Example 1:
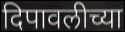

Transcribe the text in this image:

दिपावलीच्या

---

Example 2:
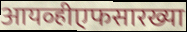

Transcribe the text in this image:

आयव्हीएफसारख्या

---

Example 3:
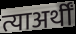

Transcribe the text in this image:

त्याअर्थीं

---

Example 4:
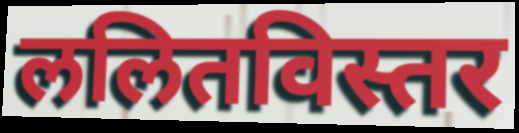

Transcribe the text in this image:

ललितविस्तर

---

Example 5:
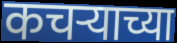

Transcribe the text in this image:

कचर्‍याच्या